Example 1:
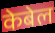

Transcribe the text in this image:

केबेल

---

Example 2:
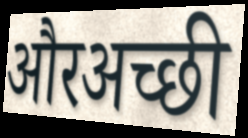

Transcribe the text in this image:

औरअच्छी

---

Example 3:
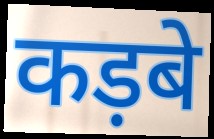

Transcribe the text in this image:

कड़बे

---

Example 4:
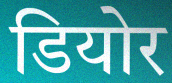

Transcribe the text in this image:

डियोर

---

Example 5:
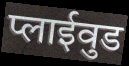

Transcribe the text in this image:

प्‍लाईवुड